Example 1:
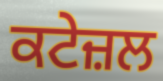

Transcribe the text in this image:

ਕਟੇਜ਼ਲ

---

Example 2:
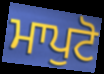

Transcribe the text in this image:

ਮਾਪੁਟੋ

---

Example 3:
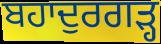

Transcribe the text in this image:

ਬਹਾਦੁਰਗੜ੍ਹ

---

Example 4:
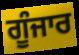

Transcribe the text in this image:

ਗੂੰਜਾਰ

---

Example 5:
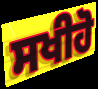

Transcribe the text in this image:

ਸਖੀਹੋ